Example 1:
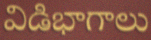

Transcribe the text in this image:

విడిభాగాలు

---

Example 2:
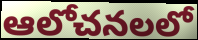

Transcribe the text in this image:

ఆలోచనలలో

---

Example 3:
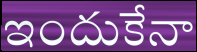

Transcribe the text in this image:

ఇందుకేనా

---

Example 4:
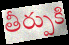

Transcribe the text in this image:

తీర్పుకి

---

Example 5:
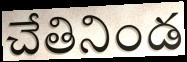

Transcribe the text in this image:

చేతినిండ